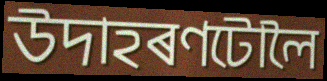
উদাহৰণটোলৈ